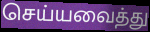
செய்யவைத்து